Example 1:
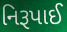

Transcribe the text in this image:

નિરૂપાઈ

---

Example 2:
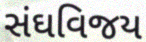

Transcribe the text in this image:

સંઘવિજય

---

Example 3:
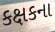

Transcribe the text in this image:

કક્ષકના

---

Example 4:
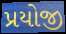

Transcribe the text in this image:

પ્રયોજી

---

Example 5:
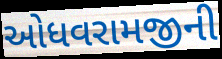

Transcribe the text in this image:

ઓધવરામજીની